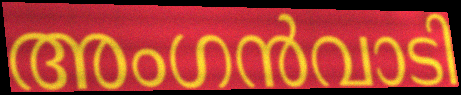
അംഗൻവാടി